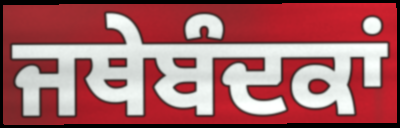
ਜਥੇਬੰਦਕਾਂ